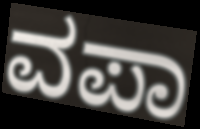
ವಪಾ